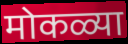
मोकळ्या